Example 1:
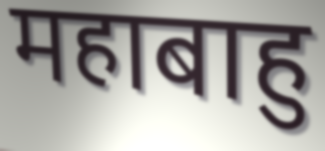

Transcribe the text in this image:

महाबाहु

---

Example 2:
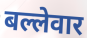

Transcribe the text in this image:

बल्लेवार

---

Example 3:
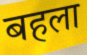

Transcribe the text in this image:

बहला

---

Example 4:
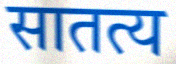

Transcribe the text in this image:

सातत्य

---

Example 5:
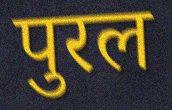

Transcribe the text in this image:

पुरल